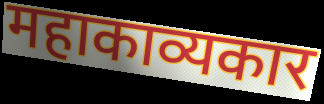
महाकाव्यकार